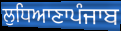
ਲੁਧਿਆਣਾਪੰਜਾਬ